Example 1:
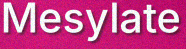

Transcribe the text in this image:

Mesylate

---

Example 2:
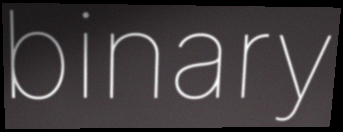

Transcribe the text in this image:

binary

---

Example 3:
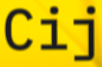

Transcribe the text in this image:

Cij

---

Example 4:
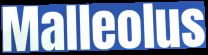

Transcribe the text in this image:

Malleolus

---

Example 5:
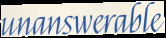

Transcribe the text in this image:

unanswerable